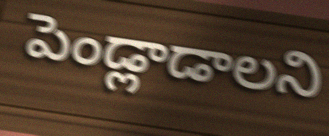
పెండ్లాడాలని